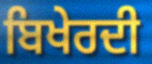
ਬਿਖੇਰਦੀ